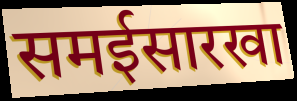
समईसारखा